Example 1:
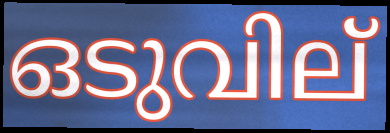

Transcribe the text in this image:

ഒടുവില്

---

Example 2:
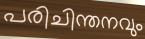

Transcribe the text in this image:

പരിചിന്തനവും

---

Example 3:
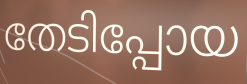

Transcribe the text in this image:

തേടിപ്പോയ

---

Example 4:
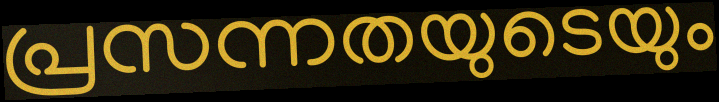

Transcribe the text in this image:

പ്രസന്നതയുടെയും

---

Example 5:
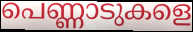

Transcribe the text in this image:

പെണ്ണാടുകളെ